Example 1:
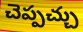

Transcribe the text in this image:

చెప్పచ్చు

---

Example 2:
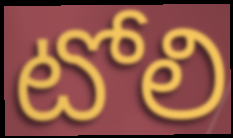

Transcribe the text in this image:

టోలి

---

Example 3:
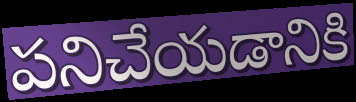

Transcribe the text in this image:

పనిచేయడానికి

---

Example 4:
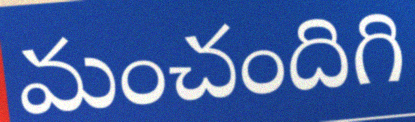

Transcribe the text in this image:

మంచందిగి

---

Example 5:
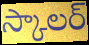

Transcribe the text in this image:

స్కాలర్